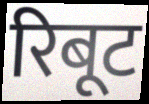
रिबूट